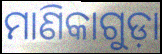
ମାଣିକାଗୁଡ଼ା